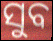
ସୁବ